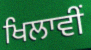
ਖਿਲਾਵੀਂ